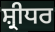
ਸ਼੍ਰੀਧਰ